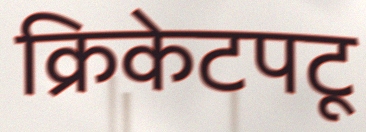
क्रिकेटपटू